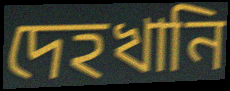
দেহখানি